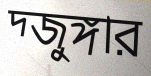
দ্জুঙ্গার